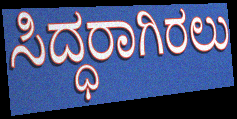
ಸಿದ್ಧರಾಗಿರಲು